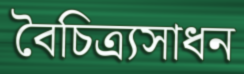
বৈচিত্র্যসাধন